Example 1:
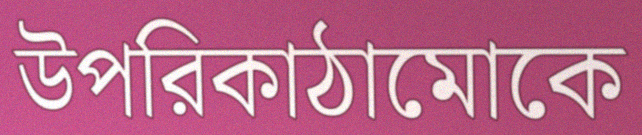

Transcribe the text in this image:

উপরিকাঠামোকে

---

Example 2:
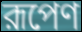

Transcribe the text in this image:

রূপেণ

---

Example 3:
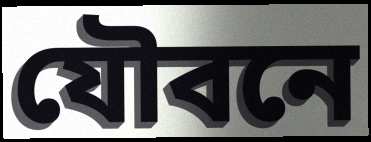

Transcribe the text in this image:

যৌবনে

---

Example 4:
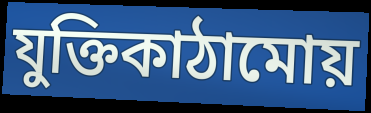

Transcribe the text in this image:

যুক্তিকাঠামোয়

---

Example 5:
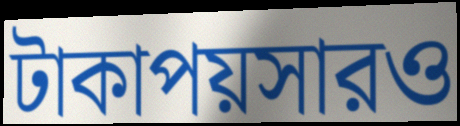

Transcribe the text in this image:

টাকাপয়সারও